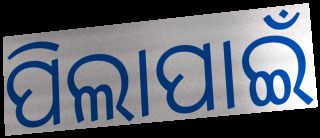
ପିଲାପାଇଁ